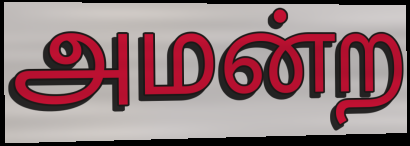
அமன்ற